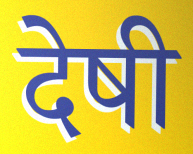
देषी